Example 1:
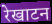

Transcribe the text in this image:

रेखाटन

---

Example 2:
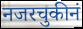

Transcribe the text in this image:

नजरचुकीनं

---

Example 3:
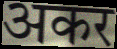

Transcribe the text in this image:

अकर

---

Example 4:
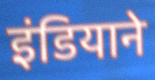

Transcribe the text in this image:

इंडियाने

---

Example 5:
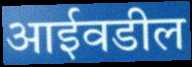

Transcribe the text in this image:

आईवडील